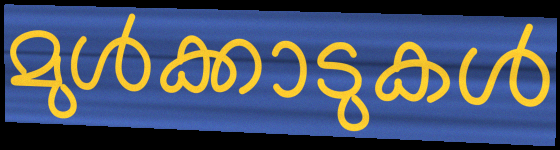
മുൾക്കാടുകൾ